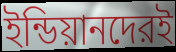
ইন্ডিয়ানদেরই